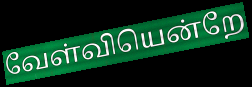
வேள்வியென்றே